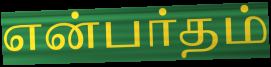
என்பர்தம்